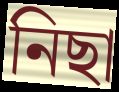
নিছা